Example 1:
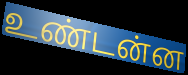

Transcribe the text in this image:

உண்டன்ன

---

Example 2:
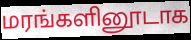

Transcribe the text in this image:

மரங்களினூடாக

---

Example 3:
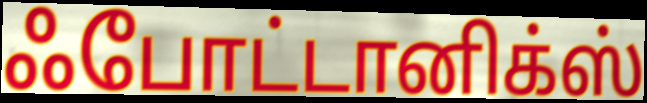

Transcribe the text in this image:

ஃபோட்டானிக்ஸ்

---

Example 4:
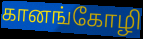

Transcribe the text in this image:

கானங்கோழி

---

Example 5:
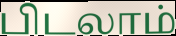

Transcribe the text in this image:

பிடலாம்